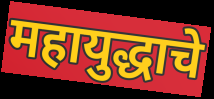
महायुद्धाचे